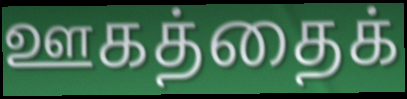
ஊகத்தைக்